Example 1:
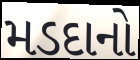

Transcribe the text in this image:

મડદાનો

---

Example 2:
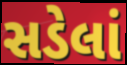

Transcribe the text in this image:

સડેલાં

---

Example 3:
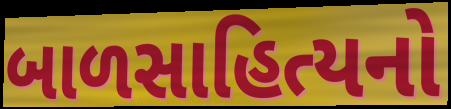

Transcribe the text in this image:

બાળસાહિત્યનો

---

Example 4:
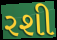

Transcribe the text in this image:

રશી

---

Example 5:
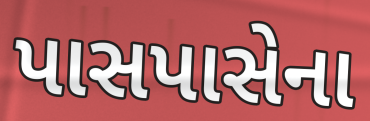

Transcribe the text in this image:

પાસપાસેના